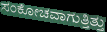
ಸಂಕೋಚವಾಗುತ್ತಿತ್ತು